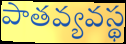
పాతవ్యవస్థ